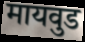
मायवुड